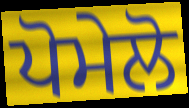
ਪੋਮੇਲੋ